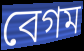
বেগম